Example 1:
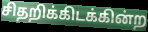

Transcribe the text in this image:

சிதறிக்கிடக்கின்ற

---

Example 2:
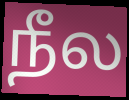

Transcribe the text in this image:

நீல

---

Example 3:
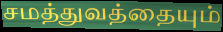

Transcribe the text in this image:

சமத்துவத்தையும்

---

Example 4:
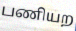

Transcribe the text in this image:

பணியற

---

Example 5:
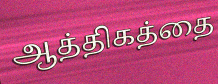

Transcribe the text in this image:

ஆத்திகத்தை